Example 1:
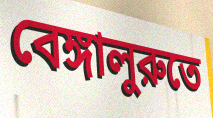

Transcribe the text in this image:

বেঙ্গালুরুতে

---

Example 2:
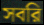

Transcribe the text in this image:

সবরি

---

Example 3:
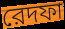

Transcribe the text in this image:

রেদফা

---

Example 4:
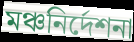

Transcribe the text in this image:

মঞ্চনির্দেশনা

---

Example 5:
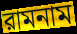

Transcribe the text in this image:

রামনাম